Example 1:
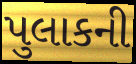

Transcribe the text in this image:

પુલાકની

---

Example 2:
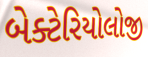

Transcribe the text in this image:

બેક્ટેરિયોલોજી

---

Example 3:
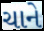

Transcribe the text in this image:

ચાને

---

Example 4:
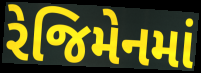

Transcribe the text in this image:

રેજિમેનમાં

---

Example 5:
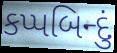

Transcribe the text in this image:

કપ્પબિન્દું